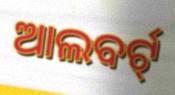
ଆଲବର୍ଟ୍